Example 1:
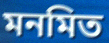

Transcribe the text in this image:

মনমিত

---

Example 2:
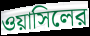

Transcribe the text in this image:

ওয়াসিলের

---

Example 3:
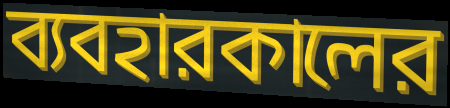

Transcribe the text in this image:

ব্যবহারকালের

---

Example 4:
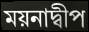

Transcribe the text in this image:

ময়নাদ্বীপ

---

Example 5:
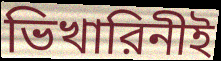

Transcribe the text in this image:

ভিখারিনীই